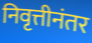
निवृत्तीनंतर